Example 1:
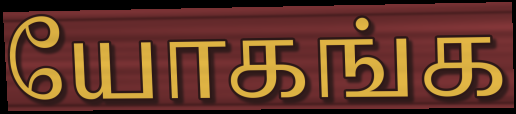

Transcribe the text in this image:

யோகங்க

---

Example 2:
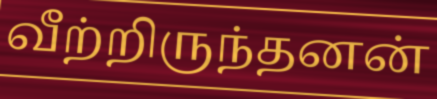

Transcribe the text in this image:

வீற்றிருந்தனன்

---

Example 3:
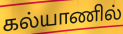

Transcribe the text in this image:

கல்யாணில்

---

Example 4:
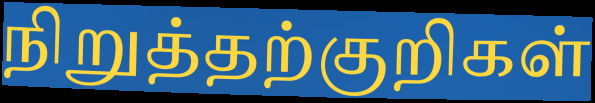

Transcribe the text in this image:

நிறுத்தற்குறிகள்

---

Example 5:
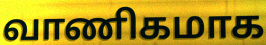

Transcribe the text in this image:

வாணிகமாக